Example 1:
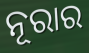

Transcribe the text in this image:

ନୂରାର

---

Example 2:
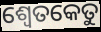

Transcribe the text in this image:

ଶ୍ୱେତକେତୁ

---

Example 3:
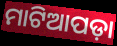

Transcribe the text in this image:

ମାଟିଆପଡ଼ା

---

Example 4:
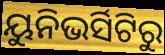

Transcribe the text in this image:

ୟୁନିଭର୍ସିଟିରୁ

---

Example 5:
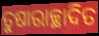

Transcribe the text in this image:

ତୁଷାରାଚ୍ଛାଦିତ